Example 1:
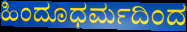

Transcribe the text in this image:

ಹಿಂದೂಧರ್ಮದಿಂದ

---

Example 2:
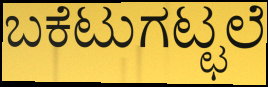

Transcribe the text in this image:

ಬಕೆಟುಗಟ್ಟಲೆ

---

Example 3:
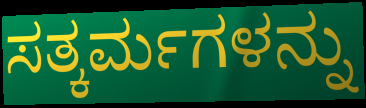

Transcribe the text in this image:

ಸತ್ಕರ್ಮಗಳನ್ನು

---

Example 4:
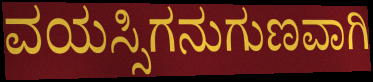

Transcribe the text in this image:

ವಯಸ್ಸಿಗನುಗುಣವಾಗಿ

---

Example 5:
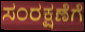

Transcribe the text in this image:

ಸಂರಕ್ಷಣೆಗೆ